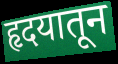
हृदयातून